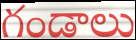
గండాలు